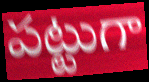
పట్టుగా